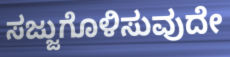
ಸಜ್ಜುಗೊಳಿಸುವುದೇ